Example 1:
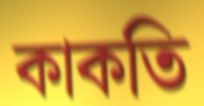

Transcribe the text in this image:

কাকতি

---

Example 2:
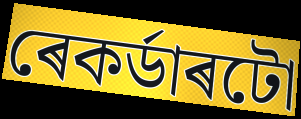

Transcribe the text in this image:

ৰেকৰ্ডাৰটো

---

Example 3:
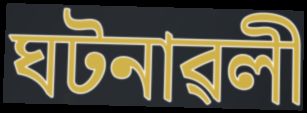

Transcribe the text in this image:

ঘটনাৱলী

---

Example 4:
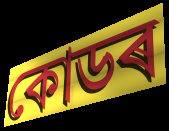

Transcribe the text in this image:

কোডৰ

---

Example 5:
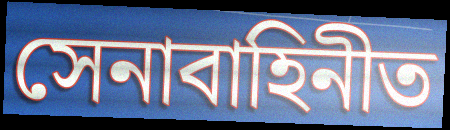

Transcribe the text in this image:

সেনাবাহিনীত